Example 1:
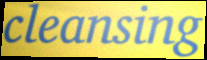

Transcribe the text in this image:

cleansing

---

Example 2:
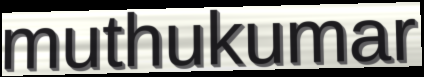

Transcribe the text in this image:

muthukumar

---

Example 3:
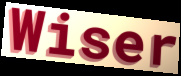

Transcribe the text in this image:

Wiser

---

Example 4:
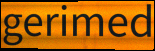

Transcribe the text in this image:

gerimed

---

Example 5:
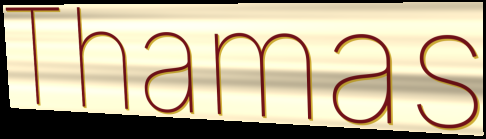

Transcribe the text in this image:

Thamas